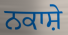
ਨਕਾਸ਼ੇ